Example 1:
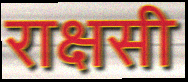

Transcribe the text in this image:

राक्षसी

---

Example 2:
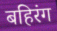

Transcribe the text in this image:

बहिरंग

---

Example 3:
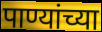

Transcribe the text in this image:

पाण्यांच्या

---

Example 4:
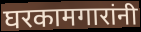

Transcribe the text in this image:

घरकामगारांनी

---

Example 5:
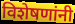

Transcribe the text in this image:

विशेषणांनी